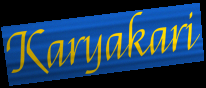
Karyakari